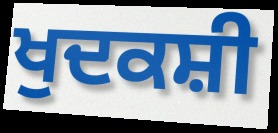
ਖੁਦਕਸ਼ੀ